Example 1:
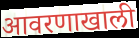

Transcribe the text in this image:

आवरणाखाली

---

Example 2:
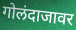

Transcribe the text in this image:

गोलंदाजावर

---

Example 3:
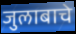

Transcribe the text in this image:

जुलाबाचे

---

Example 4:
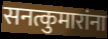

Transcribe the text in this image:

सनत्कुमारांना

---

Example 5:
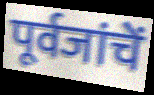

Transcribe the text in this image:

पूर्वजांचें